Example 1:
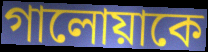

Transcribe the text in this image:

গালোয়াকে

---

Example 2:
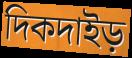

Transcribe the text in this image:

দিকদাইড়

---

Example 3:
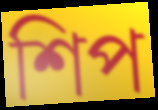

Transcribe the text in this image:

শিপ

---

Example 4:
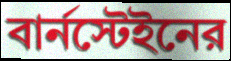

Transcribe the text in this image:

বার্নস্টেইনের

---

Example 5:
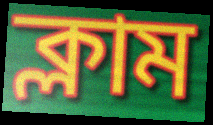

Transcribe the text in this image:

ক্লাম